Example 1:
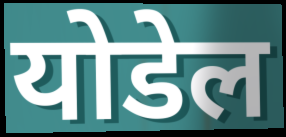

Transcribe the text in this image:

योडेल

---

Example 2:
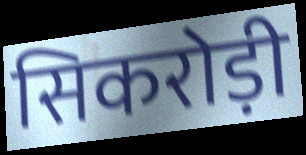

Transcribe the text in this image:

सिकरोड़ी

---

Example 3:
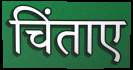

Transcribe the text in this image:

चिंताए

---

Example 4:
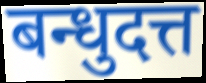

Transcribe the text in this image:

बन्धुदत्त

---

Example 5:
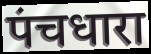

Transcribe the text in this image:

पंचधारा